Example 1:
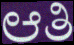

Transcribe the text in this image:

ಆತಿ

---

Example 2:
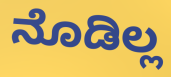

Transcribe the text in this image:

ನೊಡಿಲ್ಲ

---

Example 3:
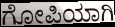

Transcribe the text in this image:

ಗೋಪಿಯಾಗಿ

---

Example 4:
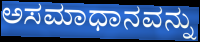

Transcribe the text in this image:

ಅಸಮಾಧಾನವನ್ನು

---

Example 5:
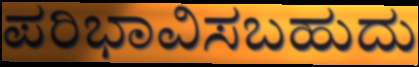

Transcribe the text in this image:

ಪರಿಭಾವಿಸಬಹುದು